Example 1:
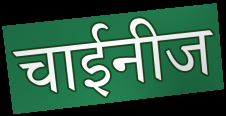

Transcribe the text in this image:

चाईनीज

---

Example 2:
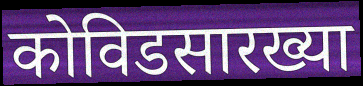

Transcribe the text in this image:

कोविडसारख्या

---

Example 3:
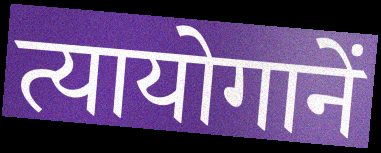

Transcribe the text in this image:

त्यायोगानें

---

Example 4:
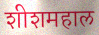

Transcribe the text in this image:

शीशमहाल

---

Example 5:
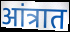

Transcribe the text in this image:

आंत्रात